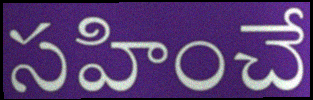
సహించే